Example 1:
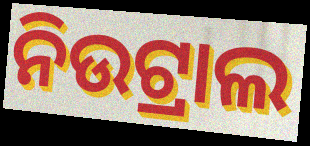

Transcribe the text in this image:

ନିଉଟ୍ରାଲ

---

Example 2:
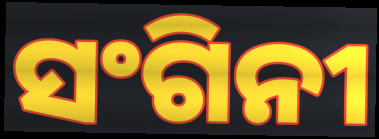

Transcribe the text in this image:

ସଂଗିନୀ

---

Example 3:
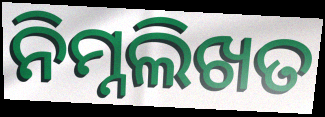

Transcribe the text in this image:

ନିମ୍ନଲିଖତ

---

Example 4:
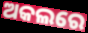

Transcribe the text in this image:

ଅକଲରେ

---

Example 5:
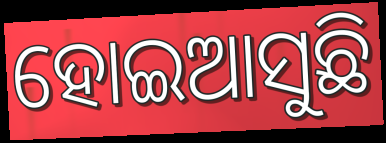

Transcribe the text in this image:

ହୋଇଆସୁଛି